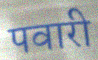
पवारी